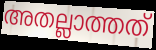
അതല്ലാത്തത്